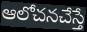
ఆలోచనచేస్తే